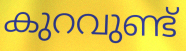
കുറവുണ്ട്